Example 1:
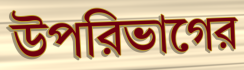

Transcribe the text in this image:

উপরিভাগের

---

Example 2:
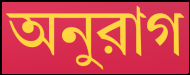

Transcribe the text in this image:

অনুরাগ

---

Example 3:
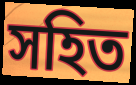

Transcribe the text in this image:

সহিত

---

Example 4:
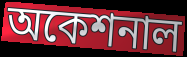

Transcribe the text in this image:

অকেশনাল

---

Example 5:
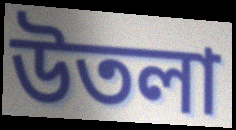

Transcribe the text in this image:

উতলা